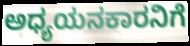
ಅಧ್ಯಯನಕಾರನಿಗೆ